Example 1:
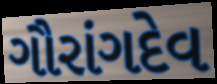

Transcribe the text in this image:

ગૌરાંગદેવ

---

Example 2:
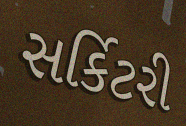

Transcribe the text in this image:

સર્કિટરી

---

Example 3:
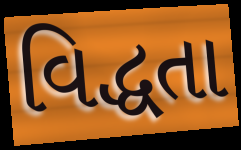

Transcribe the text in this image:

વિદ્ધતા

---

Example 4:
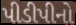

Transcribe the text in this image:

પીડીપીનો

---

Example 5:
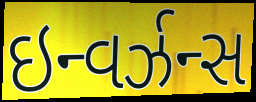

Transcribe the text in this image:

ઇન્વર્ઝન્સ